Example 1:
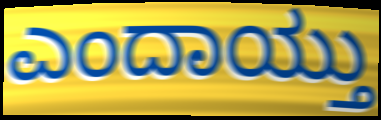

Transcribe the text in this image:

ಎಂದಾಯ್ತು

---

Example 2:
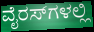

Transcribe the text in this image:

ವೈರಸ್‌ಗಳಲ್ಲಿ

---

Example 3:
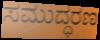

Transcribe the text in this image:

ಸಮುದ್ಧರಣ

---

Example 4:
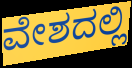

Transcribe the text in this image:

ವೇಶದಲ್ಲಿ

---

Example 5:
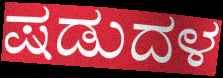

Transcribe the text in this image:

ಷಡುದಳ